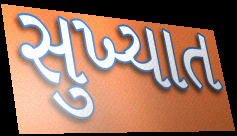
સુખ્યાત